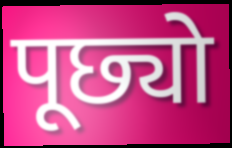
पूछ्यो